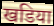
खडिया